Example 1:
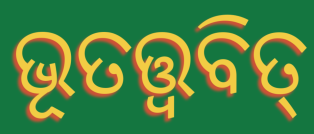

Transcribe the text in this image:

ଭୂତତ୍ତ୍ୱବିତ୍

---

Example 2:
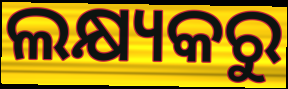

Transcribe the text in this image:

ଲକ୍ଷ୍ୟକରୁ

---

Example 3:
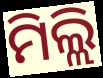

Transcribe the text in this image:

ମିଲ୍ଲି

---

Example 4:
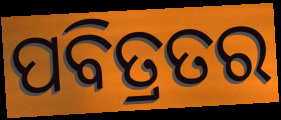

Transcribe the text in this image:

ପବିତ୍ରତର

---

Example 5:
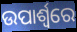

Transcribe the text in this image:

ଉପାର୍ଶ୍ଵରେ